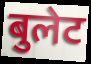
बुलेट